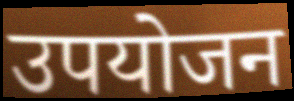
उपयोजन